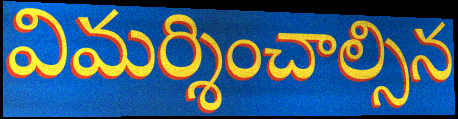
విమర్శించాల్సిన